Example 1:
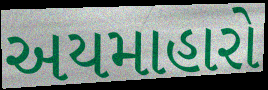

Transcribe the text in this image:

અયમાહારો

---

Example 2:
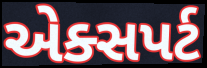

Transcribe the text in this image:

એક્સપર્ટ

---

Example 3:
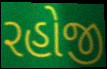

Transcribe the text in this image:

રહોજી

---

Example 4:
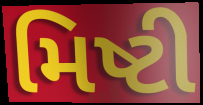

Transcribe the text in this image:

મિષ્ટી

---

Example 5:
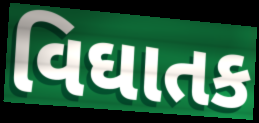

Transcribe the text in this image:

વિઘાતક